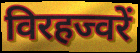
विरहज्वरें